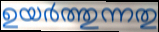
ഉയർത്തുന്നതു